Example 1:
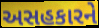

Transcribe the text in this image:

અસહકારને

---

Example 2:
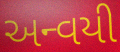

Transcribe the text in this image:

અન્વયી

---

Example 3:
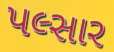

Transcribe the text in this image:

પલ્સાર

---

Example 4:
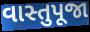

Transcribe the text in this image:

વાસ્તુપૂજા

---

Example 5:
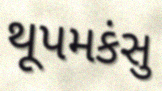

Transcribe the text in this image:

થૂપમકંસુ